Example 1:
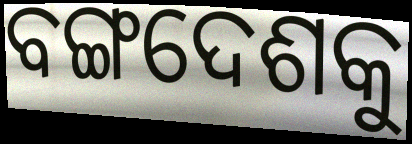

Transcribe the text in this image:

ବଙ୍ଗଦେଶକୁ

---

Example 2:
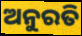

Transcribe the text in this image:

ଅନୁରତି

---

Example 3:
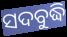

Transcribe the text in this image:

ସଦବୁଦ୍ଧି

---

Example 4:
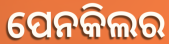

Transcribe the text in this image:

ପେନକିଲର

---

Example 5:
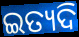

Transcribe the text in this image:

ଇତ୍ୟଦି